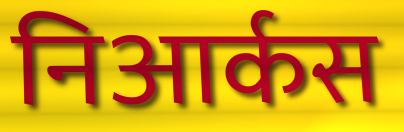
निआर्कस